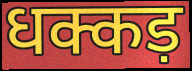
धक्कड़